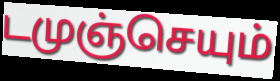
டமுஞ்செயும்